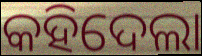
କହିଦେଲା